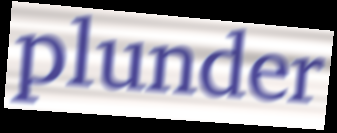
plunder